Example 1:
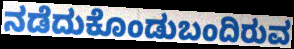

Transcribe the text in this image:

ನಡೆದುಕೊಂಡುಬಂದಿರುವ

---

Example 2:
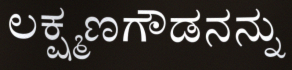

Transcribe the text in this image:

ಲಕ್ಷ್ಮಣಗೌಡನನ್ನು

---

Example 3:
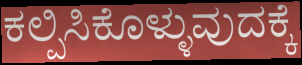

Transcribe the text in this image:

ಕಲ್ಪಿಸಿಕೊಳ್ಳುವುದಕ್ಕೆ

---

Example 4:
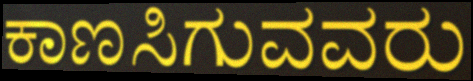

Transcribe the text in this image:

ಕಾಣಸಿಗುವವರು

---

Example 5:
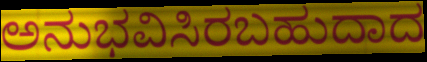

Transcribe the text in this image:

ಅನುಭವಿಸಿರಬಹುದಾದ